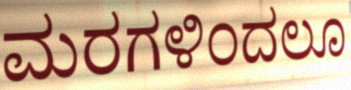
ಮರಗಳಿಂದಲೂ